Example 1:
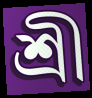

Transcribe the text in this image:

শ্ৰী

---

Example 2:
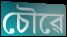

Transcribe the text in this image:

চৌৱে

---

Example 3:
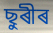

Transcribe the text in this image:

ছুৰীৰ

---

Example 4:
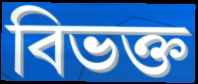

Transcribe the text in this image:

বিভক্ত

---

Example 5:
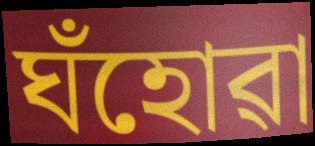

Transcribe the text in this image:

ঘঁহোৱা